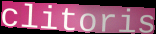
clitoris